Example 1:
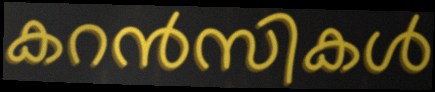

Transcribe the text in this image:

കറൻസികൾ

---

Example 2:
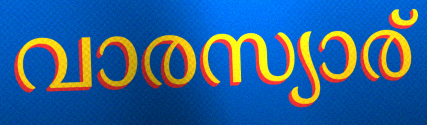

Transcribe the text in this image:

വാരസ്യാര്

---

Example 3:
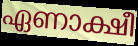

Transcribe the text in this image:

ഏണാക്ഷീ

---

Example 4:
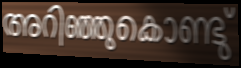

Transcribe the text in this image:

അറിഞ്ഞുകൊണ്ടു്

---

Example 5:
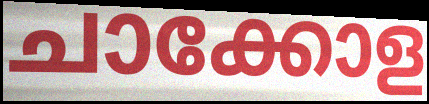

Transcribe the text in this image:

ചാക്കോള